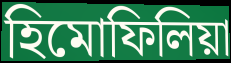
হিমোফিলিয়া